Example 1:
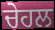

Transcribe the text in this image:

ਚੇਹਲ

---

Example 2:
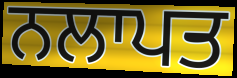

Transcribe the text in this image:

ਨਲਾਪਤ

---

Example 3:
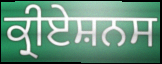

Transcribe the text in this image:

ਕ੍ਰੀਏਸ਼ਨਸ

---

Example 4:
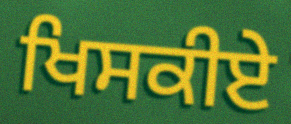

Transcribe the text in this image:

ਖਿਸਕੀਏ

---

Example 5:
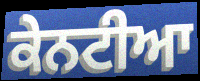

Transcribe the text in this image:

ਕੇਨਟੀਆ